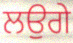
ਲਉਗੇ